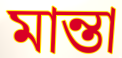
মান্তা